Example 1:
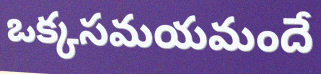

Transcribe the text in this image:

ఒక్కసమయమందే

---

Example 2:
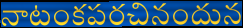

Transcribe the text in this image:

నాటంకపరచినందున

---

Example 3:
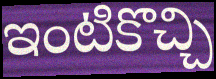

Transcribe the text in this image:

ఇంటికొచ్చి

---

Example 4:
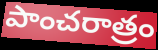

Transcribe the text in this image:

పాంచరాత్రం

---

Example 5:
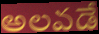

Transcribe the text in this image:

అలవడే